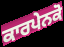
ਕਾਰਪੇਨਕੋ